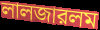
লালজারলম